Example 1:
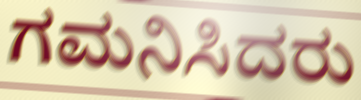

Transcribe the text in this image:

ಗಮನಿಸಿದರು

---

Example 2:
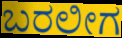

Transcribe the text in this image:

ಬರಲೀಗ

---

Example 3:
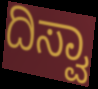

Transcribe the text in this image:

ದಿಸ್ವಾ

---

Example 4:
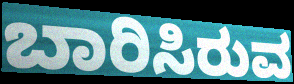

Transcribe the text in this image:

ಬಾರಿಸಿರುವ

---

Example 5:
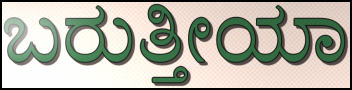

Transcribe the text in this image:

ಬರುತ್ತೀಯಾ